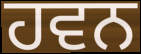
ਹਵਨ